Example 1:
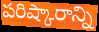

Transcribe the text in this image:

పరిష్కారాన్ని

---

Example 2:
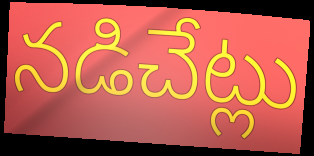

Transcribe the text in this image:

నడిచేట్లు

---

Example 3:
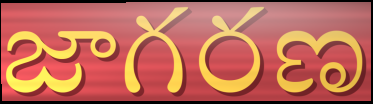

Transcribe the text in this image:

జాగరణ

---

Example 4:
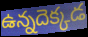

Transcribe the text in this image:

ఉన్నదెక్కడ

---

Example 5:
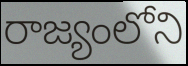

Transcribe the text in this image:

రాజ్యంలోని